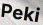
Peki